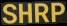
SHRP